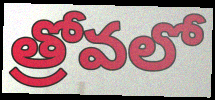
త్రోవలో